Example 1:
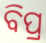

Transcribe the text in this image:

ବିପ୍ର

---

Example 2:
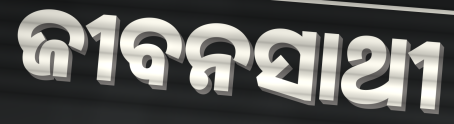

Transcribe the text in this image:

ଜୀବନସାଥୀ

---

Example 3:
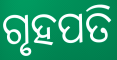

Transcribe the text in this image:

ଗୃହପତି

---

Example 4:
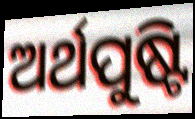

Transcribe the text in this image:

ଅର୍ଥପୁଷ୍ଟି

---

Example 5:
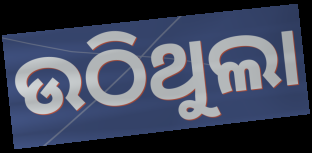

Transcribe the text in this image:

ଉଠିଥୁଲା